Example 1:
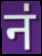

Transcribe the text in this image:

न॑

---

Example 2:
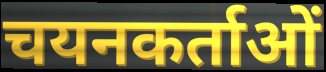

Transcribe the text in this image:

चयनकर्ताओं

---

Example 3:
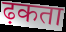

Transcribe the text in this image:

ढ़कता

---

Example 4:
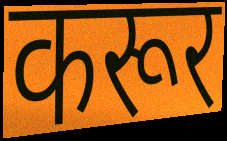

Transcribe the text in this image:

करूर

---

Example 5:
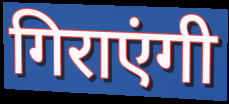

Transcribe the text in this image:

गिराएंगी